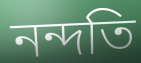
নন্দতি